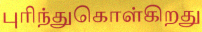
புரிந்துகொள்கிறது